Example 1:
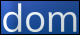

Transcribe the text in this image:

dom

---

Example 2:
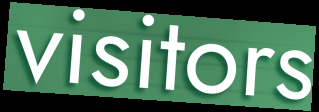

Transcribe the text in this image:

visitors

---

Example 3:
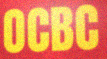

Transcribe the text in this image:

OCBC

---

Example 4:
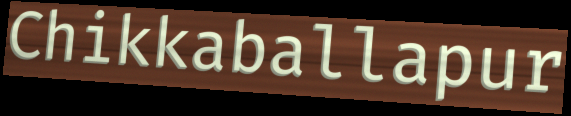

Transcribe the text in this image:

Chikkaballapur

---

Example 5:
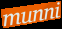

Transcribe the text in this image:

munni